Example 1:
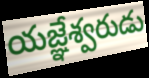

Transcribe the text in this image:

యజ్ఞేశ్వరుడు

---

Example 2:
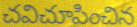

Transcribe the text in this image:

చవిచూపించిన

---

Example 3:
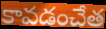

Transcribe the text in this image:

కావడంచేత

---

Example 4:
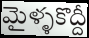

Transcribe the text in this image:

మైళ్ళకొద్దీ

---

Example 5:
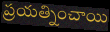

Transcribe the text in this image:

ప్రయత్నించాయి